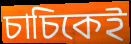
চাচিকেই